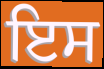
ਇਸ